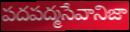
పదపద్మసేవానిజా